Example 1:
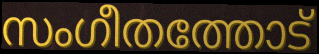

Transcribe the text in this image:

സംഗീതത്തോട്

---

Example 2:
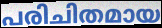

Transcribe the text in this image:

പരിചിതമായ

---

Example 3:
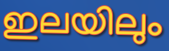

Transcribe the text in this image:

ഇലയിലും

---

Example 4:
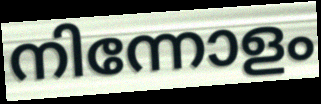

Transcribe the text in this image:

നിന്നോളം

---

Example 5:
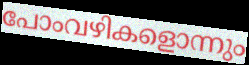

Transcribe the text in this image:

പോംവഴികളൊന്നും